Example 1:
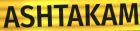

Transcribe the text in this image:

ASHTAKAM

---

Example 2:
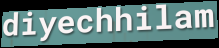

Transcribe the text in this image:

diyechhilam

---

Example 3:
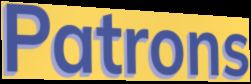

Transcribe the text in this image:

Patrons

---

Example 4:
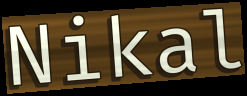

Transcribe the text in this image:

Nikal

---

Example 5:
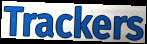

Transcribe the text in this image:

Trackers